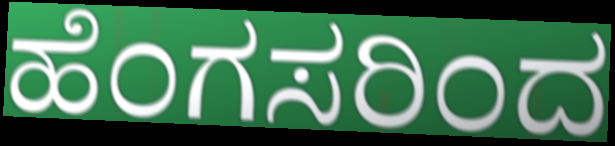
ಹೆಂಗಸರಿಂದ